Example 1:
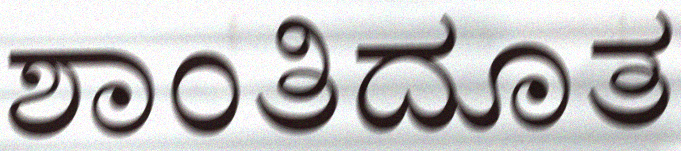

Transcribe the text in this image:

ಶಾಂತಿದೂತ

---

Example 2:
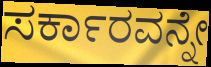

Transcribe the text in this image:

ಸರ್ಕಾರವನ್ನೇ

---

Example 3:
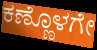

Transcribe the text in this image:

ಕಣ್ಣೊಳಗೇ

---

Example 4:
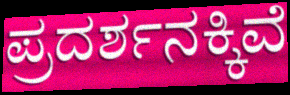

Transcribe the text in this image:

ಪ್ರದರ್ಶನಕ್ಕಿವೆ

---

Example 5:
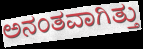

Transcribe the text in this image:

ಅನಂತವಾಗಿತ್ತು